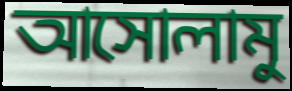
আসোলামু